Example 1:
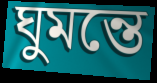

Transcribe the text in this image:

ঘুমন্তে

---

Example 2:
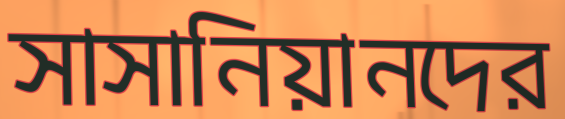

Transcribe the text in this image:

সাসানিয়ানদের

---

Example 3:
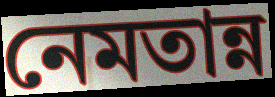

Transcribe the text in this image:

নেমতান্ন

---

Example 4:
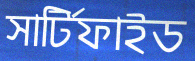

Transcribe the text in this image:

সার্টিফাইড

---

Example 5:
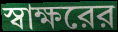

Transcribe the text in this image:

স্বাক্ষরের